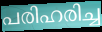
പരിഹരിച്ച